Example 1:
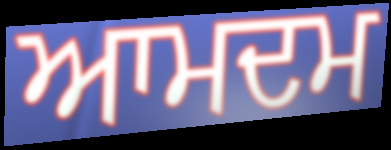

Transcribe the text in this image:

ਆਮਦਮ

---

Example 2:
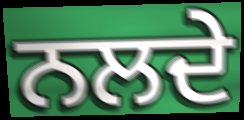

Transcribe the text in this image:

ਨਲਦੇ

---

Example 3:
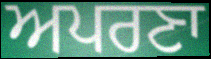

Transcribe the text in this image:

ਅਪਰਣਾ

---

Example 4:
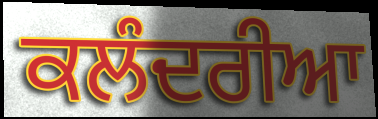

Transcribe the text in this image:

ਕਲੰਦਰੀਆ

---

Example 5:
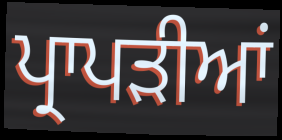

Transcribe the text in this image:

ਪ੍ਰਾਪੜੀਆਂ